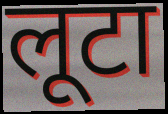
लूटा